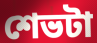
শেভটা